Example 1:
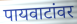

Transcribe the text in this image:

पायवाटांवर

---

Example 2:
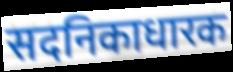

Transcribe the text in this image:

सदनिकाधारक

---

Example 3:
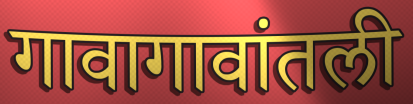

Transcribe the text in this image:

गावागावांतली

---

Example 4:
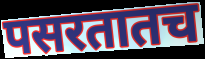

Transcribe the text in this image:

पसरतातच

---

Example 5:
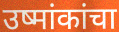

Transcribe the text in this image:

उष्मांकांचा